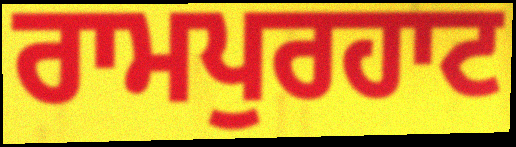
ਰਾਮਪੁਰਹਾਟ